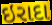
ઇરાદા